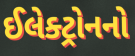
ઈલેક્ટ્રોનનો